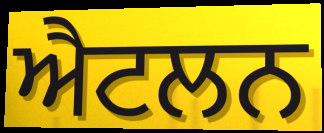
ਐਟਲਨ